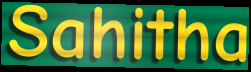
Sahitha